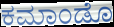
ಕಮಾಂಡೊ